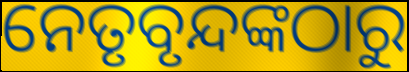
ନେତୃବୃନ୍ଦଙ୍କଠାରୁ